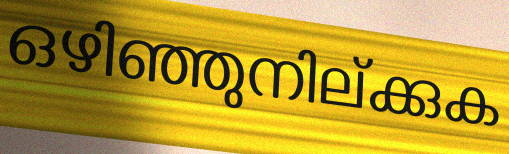
ഒഴിഞ്ഞുനില്ക്കുക